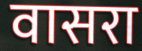
वासरा